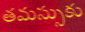
తమస్సుకు